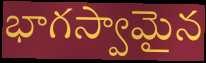
భాగస్వామైన